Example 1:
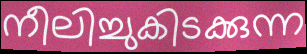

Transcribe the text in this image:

നീലിച്ചുകിടക്കുന്ന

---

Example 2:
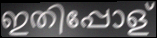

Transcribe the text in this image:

ഇതിപ്പോള്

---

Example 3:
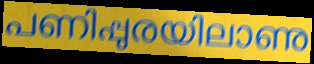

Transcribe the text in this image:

പണിപ്പുരയിലാണു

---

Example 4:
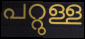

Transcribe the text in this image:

പറ്റുള്ള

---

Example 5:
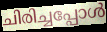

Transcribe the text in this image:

ചിരിച്ചപ്പോൾ